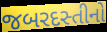
જબરદસ્તીનો